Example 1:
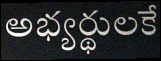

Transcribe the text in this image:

అభ్యర్థులకే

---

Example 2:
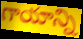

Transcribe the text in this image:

గాయాన్ని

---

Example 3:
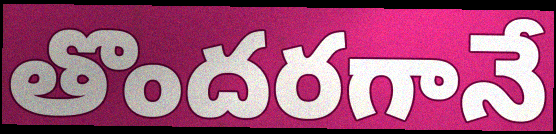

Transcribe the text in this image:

తొందరగానే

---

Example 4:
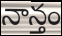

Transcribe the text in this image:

నాన్తం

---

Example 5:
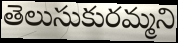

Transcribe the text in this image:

తెలుసుకురమ్మని